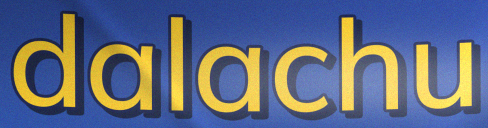
dalachu